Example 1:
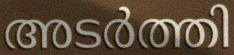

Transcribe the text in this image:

അടർത്തി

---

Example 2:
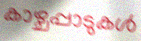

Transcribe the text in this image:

കാഴ്ചപ്പാടുകൾ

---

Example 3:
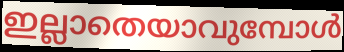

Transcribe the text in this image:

ഇല്ലാതെയാവുമ്പോൾ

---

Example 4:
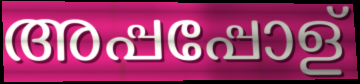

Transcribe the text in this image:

അപ്പപ്പോള്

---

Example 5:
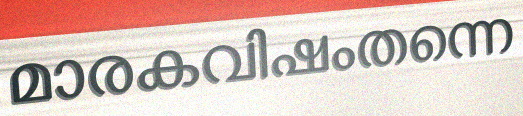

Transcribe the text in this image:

മാരകവിഷംതന്നെ